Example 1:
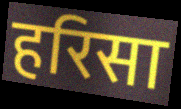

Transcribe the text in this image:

हरिसा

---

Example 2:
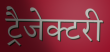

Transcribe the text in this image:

ट्रैजेक्टरी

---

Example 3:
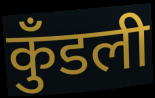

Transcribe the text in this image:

कुँडली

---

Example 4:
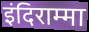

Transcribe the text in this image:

इंदिराम्मा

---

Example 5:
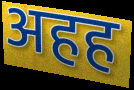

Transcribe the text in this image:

अहह